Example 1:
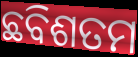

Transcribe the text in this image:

ଛବିଶତମ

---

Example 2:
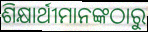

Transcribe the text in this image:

ଶିକ୍ଷାର୍ଥୀମାନଙ୍କଠାରୁ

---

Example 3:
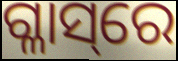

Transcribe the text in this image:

ଗ୍ଳାସ୍‌ରେ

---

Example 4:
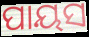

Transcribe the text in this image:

ପାୟସ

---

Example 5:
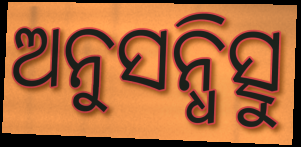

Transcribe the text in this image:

ଅନୁସନ୍ଧିତ୍ସୁ